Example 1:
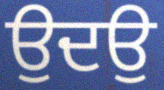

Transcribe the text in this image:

ਉਦਉ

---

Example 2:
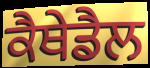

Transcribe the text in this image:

ਕੈਥੇਡੈਲ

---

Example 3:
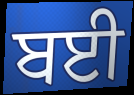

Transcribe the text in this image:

ਬਈ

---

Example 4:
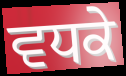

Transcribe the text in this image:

ਵਧਕੇ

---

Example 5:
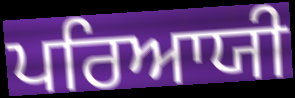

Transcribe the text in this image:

ਪਰਿਆਯੀ